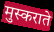
मुस्‍कराते